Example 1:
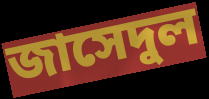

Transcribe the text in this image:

জাসেদুল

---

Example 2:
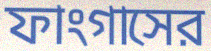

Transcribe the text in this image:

ফাংগাসের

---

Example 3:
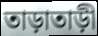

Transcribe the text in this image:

তাড়াতাড়ী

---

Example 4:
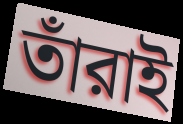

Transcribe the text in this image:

তাঁরাই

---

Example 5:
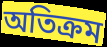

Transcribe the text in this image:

অতিক্রম